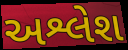
અશ્લેશ